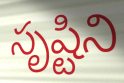
సృష్టిని